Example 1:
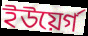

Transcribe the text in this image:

ইউয়ের্গ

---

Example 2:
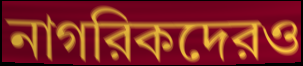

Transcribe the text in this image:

নাগরিকদেরও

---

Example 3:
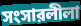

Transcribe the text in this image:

সংসারলীলা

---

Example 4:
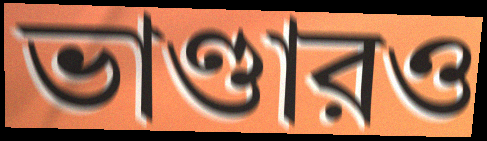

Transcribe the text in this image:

ভাণ্ডারও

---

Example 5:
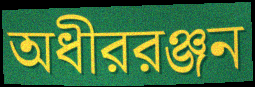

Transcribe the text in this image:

অধীররঞ্জন